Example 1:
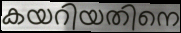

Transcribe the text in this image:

കയറിയതിനെ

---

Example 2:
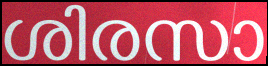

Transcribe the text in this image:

ശിരസാ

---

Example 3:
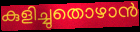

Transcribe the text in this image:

കുളിച്ചുതൊഴാൻ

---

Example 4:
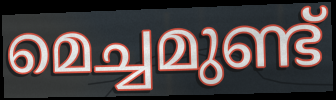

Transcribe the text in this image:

മെച്ചമുണ്ട്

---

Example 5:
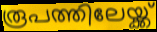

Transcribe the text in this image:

രൂപത്തിലേയ്ക്ക്